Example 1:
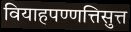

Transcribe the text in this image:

वियाहपण्णत्तिसुत्त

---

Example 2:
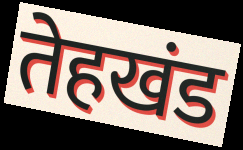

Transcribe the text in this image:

तेहखंड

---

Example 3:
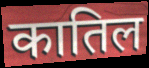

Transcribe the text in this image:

कातिल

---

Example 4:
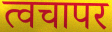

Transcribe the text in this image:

त्वचापर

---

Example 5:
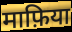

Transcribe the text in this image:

माफ़िया